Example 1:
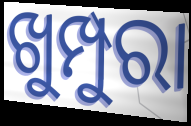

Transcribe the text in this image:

ଖୁମ୍ପୁରା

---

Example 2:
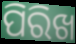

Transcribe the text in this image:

ପିରିଖ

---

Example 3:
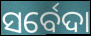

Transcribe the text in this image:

ସର୍ବେଦା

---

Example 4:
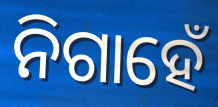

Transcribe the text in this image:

ନିଗାହେଁ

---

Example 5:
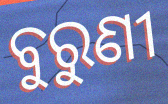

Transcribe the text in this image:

ବୁରୁଣୀ